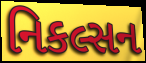
નિકલ્સન